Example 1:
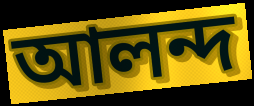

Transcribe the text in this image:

আলন্দ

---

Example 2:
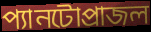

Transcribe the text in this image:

প্যানটোপ্রাজল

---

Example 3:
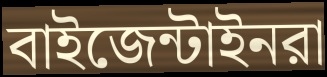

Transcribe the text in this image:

বাইজেন্টাইনরা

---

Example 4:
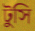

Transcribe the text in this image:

টুসি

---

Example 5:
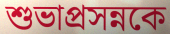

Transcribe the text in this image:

শুভাপ্রসন্নকে